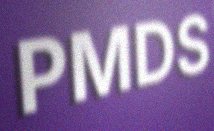
PMDS